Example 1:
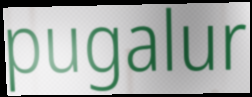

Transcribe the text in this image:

pugalur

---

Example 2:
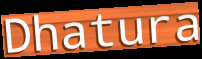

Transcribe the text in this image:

Dhatura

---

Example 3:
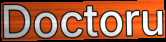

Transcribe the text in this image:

Doctoru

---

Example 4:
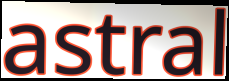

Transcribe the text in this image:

astral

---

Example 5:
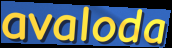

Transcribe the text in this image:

avaloda